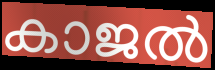
കാജൽ